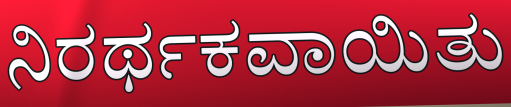
ನಿರರ್ಥಕವಾಯಿತು